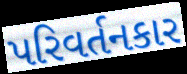
પરિવર્તનકાર